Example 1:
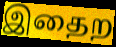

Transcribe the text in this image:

இதைற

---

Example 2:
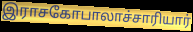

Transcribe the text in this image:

இராசகோபாலாச்சாரியார்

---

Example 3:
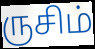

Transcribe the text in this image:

ருசிம்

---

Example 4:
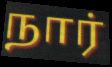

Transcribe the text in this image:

நார்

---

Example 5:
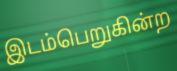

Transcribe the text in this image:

இடம்பெறுகின்ற